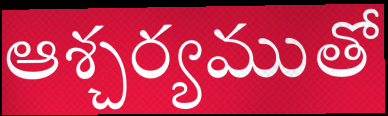
ఆశ్చర్యముతో